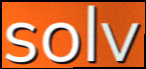
solv